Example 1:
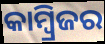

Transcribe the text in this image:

କାମ୍ବ୍ରିଜର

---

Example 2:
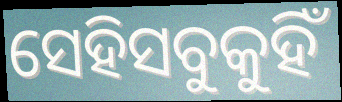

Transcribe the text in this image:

ସେହିସବୁକୁହିଁ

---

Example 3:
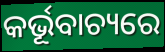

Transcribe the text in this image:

କର୍ଭୂବାଚ୍ୟରେ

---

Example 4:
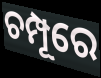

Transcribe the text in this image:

ଚମ୍ପୂରେ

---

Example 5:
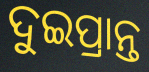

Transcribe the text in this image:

ଦୁଇପ୍ରାନ୍ତ